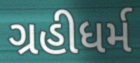
ગ્રહીધર્મ